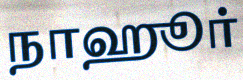
நாஹூர்